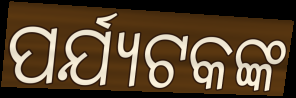
ପର୍ଯ୍ୟଟକଙ୍କ